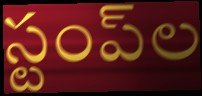
స్టంప్‌ల